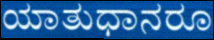
ಯಾತುಧಾನರೂ